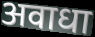
अवाधा